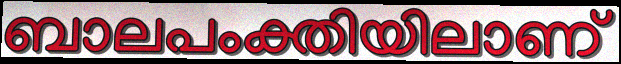
ബാലപംക്തിയിലാണ്